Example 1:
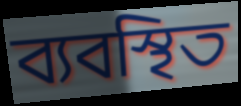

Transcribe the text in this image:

ব্যবস্থিত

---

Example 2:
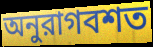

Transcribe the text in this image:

অনুরাগবশত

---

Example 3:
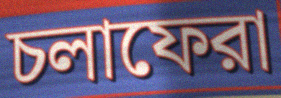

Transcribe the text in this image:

চলাফেরা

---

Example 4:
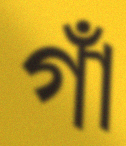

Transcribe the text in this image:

গাঁ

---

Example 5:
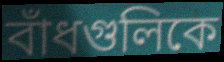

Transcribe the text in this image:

বাঁধগুলিকে